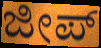
ಜೀಪ್